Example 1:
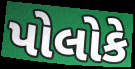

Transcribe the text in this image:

પોલોકે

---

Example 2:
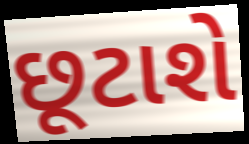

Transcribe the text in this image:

છૂટાશે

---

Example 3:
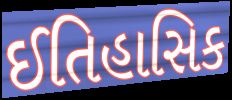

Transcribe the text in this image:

ઈતિહાસિક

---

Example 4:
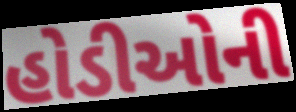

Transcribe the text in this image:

હોડીઓની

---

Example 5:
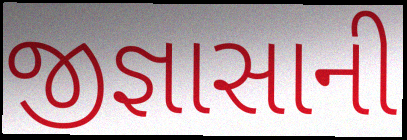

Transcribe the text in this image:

જીજ્ઞાસાની